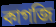
কাগজি